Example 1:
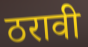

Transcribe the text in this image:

ठरावी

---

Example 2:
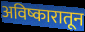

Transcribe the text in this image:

अविष्कारातून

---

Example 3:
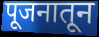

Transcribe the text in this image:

पूजनातून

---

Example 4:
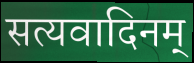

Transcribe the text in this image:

सत्यवादिनम्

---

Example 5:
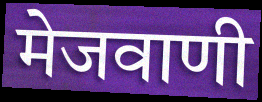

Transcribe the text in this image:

मेजवाणी